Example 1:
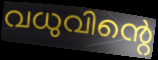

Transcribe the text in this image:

വധുവിന്റെ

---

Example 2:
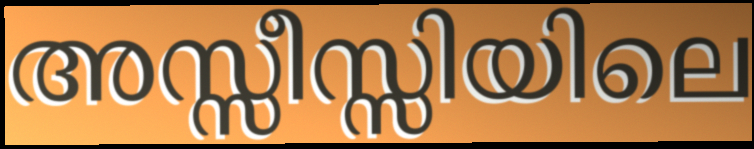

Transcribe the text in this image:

അസ്സീസ്സിയിലെ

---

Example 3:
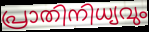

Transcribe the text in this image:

പ്രാതിനിധ്യവും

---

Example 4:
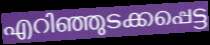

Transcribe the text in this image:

എറിഞ്ഞുടക്കപ്പെട്ട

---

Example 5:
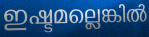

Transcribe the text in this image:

ഇഷ്ടമല്ലെങ്കിൽ